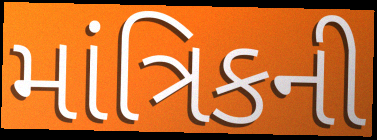
માંત્રિકની